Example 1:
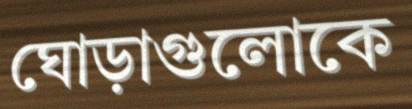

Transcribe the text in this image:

ঘোড়াগুলোকে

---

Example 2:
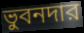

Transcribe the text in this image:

ভুবনদার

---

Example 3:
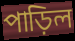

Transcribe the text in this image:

পাড়িল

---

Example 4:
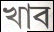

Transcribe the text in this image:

খাব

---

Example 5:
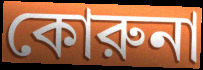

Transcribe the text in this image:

কোরুনা